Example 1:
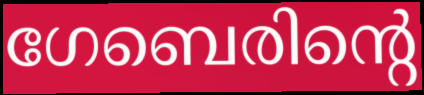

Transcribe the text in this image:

ഗേബെരിന്റെ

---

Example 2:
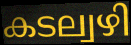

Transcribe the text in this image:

കടല്വഴി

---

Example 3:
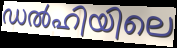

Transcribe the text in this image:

ഡൽഹിയിലെ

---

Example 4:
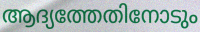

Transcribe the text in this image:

ആദ്യത്തേതിനോടും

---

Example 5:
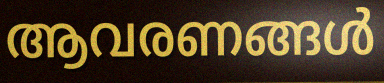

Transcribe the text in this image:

ആവരണങ്ങൾ